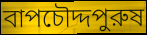
বাপচৌদ্দপুরুষ